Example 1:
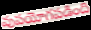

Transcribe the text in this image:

వుపయోగపడింది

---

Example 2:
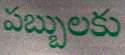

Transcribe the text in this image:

పబ్బులకు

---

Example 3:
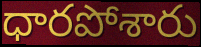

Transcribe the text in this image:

ధారపోశారు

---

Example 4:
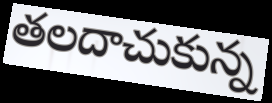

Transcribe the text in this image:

తలదాచుకున్న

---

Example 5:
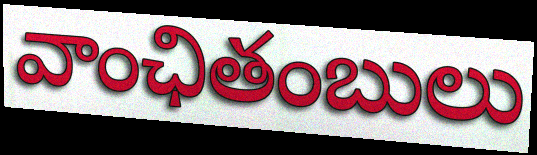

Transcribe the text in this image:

వాంఛితంబులు